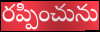
రప్పించును